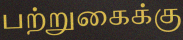
பற்றுகைக்கு